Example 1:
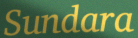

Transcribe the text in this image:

Sundara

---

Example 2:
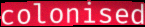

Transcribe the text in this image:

colonised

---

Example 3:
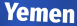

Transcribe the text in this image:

Yemen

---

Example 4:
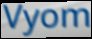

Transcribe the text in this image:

Vyom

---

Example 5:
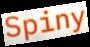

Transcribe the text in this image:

Spiny